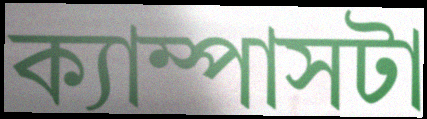
ক্যাম্পাসটা